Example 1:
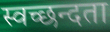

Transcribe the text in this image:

स्वच्छन्दता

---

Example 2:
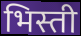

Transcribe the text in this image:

भिस्ती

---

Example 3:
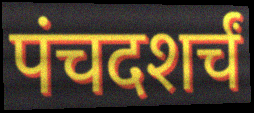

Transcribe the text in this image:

पंचदशर्चं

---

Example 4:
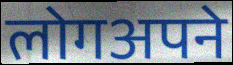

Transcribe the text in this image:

लोगअपने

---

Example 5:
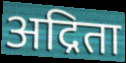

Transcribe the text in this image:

अद्रिता